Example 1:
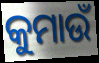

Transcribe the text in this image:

କୁମାଉଁ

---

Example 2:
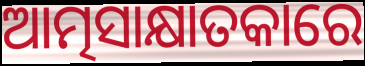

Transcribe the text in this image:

ଆତ୍ମସାକ୍ଷାତକାରେ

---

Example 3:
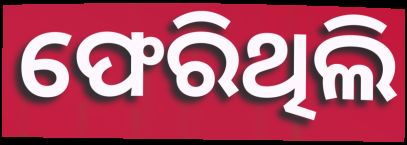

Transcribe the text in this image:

ଫେରିଥିଲି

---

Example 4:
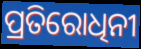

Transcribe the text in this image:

ପ୍ରତିରୋଧିନୀ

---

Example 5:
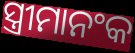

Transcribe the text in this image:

ସ୍ତ୍ରୀମାନଂକ